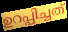
ഉറപ്പിച്ചത്